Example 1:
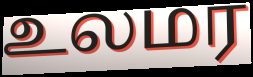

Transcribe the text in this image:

உலமர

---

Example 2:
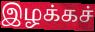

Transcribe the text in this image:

இழக்கச்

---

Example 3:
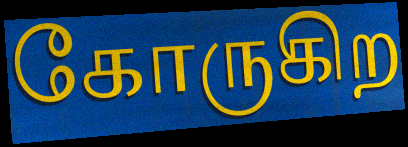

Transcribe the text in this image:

கோருகிற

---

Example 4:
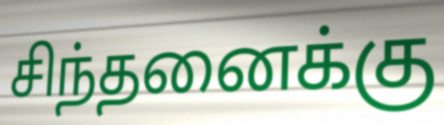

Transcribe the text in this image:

சிந்தனைக்கு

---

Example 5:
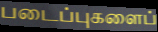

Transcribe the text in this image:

படைப்புகளைப்